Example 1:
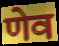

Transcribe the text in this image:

णेव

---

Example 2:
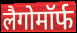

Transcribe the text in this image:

लैगोमॉर्फ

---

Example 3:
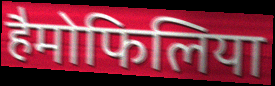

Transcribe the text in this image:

हैमोफिलिया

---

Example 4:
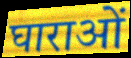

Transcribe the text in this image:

घाराओं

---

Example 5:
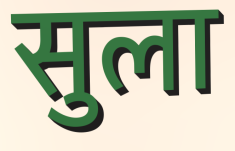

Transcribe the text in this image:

सुला